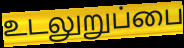
உடலுறுப்பை